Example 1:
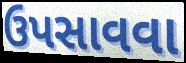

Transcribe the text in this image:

ઉપસાવવા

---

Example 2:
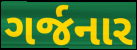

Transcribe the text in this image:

ગર્જનાર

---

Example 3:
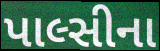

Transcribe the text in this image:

પાલ્સીના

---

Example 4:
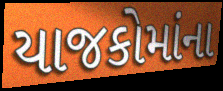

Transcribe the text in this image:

યાજકોમાંના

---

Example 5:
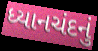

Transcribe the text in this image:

ધ્યાનચંદનું